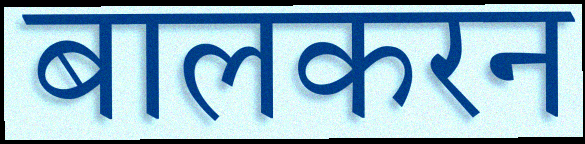
बालकरन